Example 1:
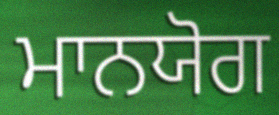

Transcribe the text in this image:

ਮਾਨਯੋਗ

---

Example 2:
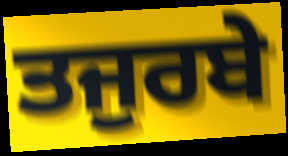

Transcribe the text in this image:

ਤਜੁਰਬੇ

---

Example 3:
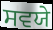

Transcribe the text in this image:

ਸਵਯੇ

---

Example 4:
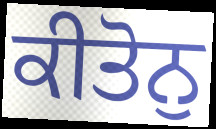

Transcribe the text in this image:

ਕੀਤੋਨੁ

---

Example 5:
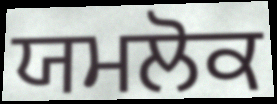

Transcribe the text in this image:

ਯਮਲੋਕ